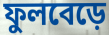
ফুলবেড়ে